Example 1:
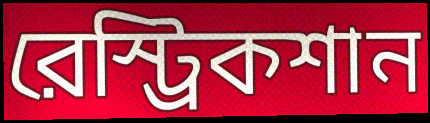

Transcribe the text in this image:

রেস্ট্রিকশান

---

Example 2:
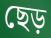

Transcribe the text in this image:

ছেড়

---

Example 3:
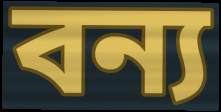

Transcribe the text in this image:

বন্য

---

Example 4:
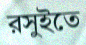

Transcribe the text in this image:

রসুইতে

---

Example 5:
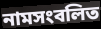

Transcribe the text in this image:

নামসংবলিত